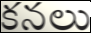
కనలు